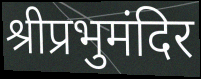
श्रीप्रभुमंदिर